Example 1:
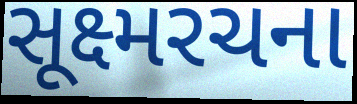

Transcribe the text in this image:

સૂક્ષ્મરચના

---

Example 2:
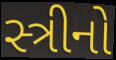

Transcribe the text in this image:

સ્ત્રીનો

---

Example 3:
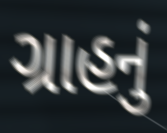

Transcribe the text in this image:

ગ્રાહનું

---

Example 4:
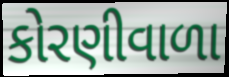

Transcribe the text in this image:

કોરણીવાળા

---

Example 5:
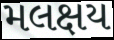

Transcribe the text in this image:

મલક્ષય